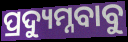
ପ୍ରଦ୍ୟୁମ୍ନବାବୁ